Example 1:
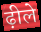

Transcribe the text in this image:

ढ़ीले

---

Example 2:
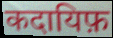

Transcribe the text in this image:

कदायिफ़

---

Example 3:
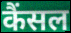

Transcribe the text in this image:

कैंसल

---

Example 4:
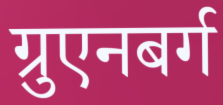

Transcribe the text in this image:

ग्रुएनबर्ग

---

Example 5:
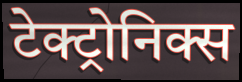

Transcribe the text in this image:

टेक्ट्रोनिक्स